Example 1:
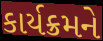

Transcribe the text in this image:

કાર્યક્રમને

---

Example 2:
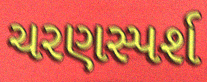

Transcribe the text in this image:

ચરણસ્પર્શ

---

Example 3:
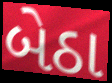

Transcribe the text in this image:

બેઠા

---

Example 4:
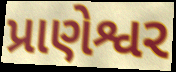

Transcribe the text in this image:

પ્રાણેશ્વર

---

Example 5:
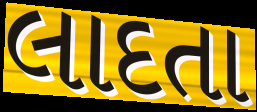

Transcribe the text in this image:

લાદતા